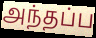
அந்தப்ப